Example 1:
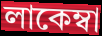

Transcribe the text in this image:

লাকেম্বা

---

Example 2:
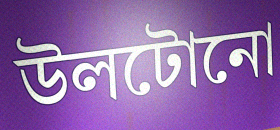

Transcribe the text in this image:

উলটোনো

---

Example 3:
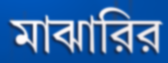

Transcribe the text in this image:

মাঝারির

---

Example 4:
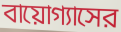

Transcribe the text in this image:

বায়োগ্যাসের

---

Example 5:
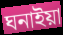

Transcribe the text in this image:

ঘনাইয়া